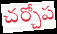
చర్చోప